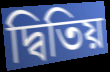
দ্বিতিয়